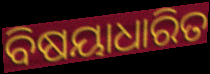
ବିଷୟାଧାରିତ